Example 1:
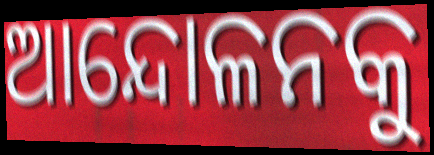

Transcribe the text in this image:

ଆନ୍ଦୋଳନକୁ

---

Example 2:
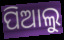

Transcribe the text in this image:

ପିଆଲୁ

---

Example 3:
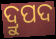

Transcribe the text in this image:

ଦ୍ରୁପଦ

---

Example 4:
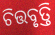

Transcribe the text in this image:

ଚିତ୍ତବୃତ୍ତି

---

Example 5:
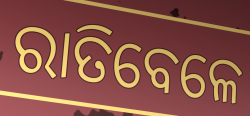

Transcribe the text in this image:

ରାତିବେଳେ